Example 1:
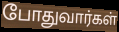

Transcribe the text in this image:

போதுவார்கள்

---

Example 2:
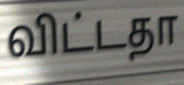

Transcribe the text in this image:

விட்டதா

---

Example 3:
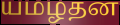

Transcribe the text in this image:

யமழதன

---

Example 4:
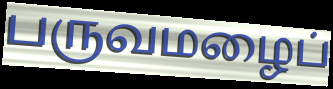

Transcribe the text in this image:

பருவமழைப்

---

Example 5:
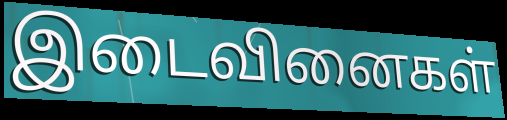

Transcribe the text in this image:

இடைவினைகள்